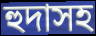
হুদাসহ